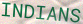
INDIANS